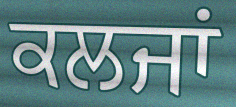
ਕਲਜਾਂ